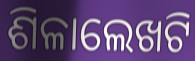
ଶିଳାଲେଖଟି